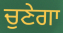
ਚੁਣੇਗਾ